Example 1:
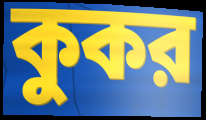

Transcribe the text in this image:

কুকর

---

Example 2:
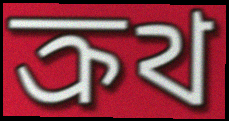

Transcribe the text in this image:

ক্রথ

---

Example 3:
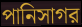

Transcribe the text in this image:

পানিসাগর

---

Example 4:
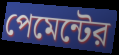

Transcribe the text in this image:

পেমেন্টের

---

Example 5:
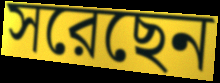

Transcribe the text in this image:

সরেছেন